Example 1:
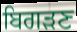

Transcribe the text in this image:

ਬਿਗੜਣ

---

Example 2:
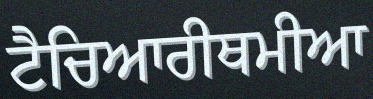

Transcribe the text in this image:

ਟੈਚਿਆਰੀਥਮੀਆ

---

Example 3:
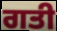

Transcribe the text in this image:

ਗਤੀ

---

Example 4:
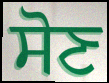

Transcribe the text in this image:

ਸੋਣ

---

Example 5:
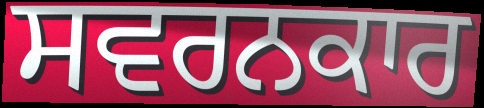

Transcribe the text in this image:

ਸਵਰਨਕਾਰ